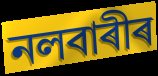
নলবাৰীৰ